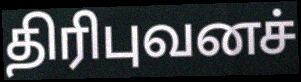
திரிபுவனச்